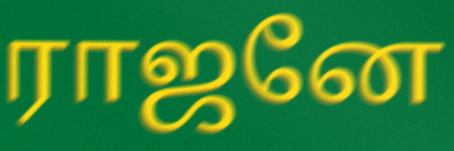
ராஜனே